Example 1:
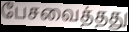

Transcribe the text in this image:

பேசவைத்தது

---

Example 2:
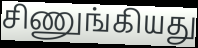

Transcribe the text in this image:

சிணுங்கியது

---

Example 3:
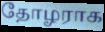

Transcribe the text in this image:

தோழராக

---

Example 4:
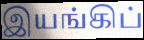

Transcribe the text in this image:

இயங்கிப்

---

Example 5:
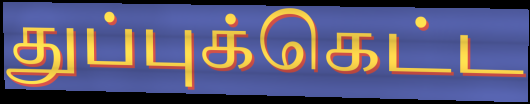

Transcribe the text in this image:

துப்புக்கெட்ட